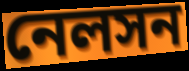
নেলসন